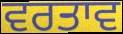
ਵਰਤਾਵ